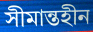
সীমান্তহীন